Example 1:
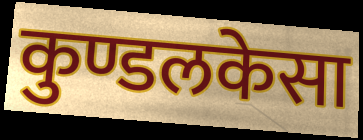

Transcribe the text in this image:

कुण्डलकेसा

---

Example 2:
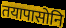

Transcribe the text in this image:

तयापासोनि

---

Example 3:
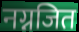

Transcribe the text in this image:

नग्नजित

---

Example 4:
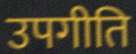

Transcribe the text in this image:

उपगीति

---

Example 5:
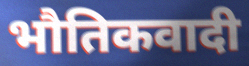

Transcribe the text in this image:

भौतिकवादी